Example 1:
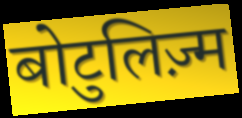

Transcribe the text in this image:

बोटुलिज़्म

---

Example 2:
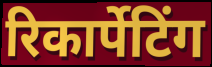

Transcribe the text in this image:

रिकार्पेटिंग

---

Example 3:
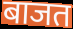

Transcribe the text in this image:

बाजत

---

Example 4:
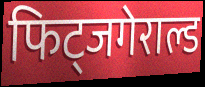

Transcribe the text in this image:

फिट्जगेराल्ड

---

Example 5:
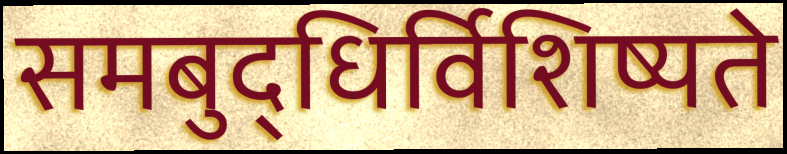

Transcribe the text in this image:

समबुद्धिर्विशिष्यते